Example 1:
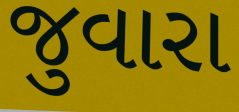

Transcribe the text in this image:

જુવારા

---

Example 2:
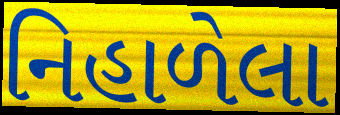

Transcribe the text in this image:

નિહાળેલા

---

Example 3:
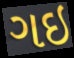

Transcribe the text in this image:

ગઇ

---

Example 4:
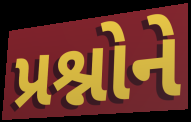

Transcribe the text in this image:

પ્રશ્નોને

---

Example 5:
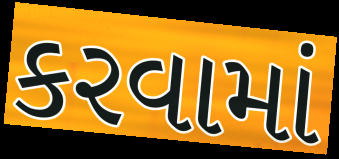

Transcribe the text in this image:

કરવામાં